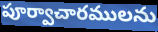
పూర్వాచారములను